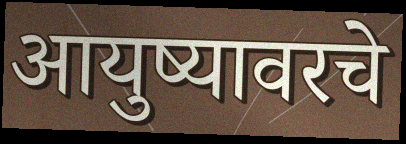
आयुष्यावरचे